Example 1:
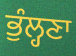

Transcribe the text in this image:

ਭੁੰਲ੍ਹਣਾ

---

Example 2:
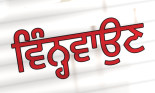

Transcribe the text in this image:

ਵਿੰਨ੍ਹਵਾਉਣ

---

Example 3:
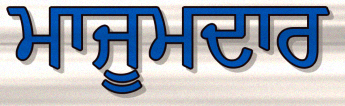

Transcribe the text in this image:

ਮਾਜੂਮਦਾਰ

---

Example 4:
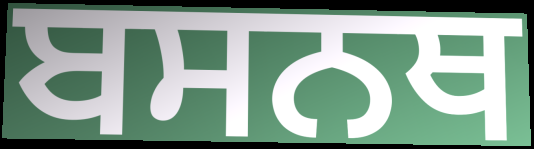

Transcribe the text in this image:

ਬਸਨਥ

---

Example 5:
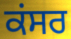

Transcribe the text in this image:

ਕਂਸਰ